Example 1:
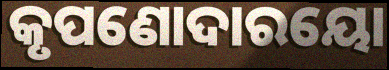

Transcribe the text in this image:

କୃପଣୋଦାରୟୋ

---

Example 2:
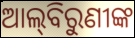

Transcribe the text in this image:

ଆଲ୍‌ବିରୁଣୀଙ୍କ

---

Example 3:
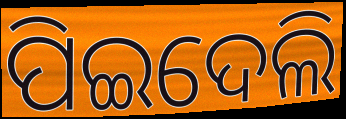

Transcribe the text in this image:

ପିଇଦେଲି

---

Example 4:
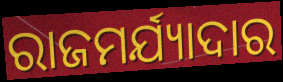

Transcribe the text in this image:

ରାଜମର୍ଯ୍ୟାଦାର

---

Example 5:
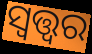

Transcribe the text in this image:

ସ୍ୱତ୍ତ୍ୱର